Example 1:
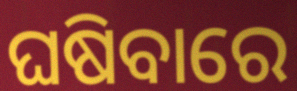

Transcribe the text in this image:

ଘଷିବାରେ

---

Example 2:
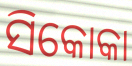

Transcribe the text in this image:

ସିକୋକା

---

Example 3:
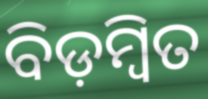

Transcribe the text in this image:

ବିଡ଼ମ୍ଵିତ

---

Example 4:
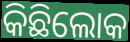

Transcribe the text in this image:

କିଛିଲୋକ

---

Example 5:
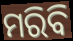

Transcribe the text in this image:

ମରିବି